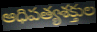
ఆధిపత్యశక్తుల